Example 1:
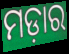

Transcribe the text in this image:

ମଡ଼ାର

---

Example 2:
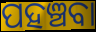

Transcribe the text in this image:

ପହଞ୍ଚବା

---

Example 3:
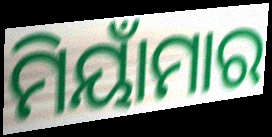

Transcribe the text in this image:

ମିୟାଁମାର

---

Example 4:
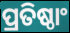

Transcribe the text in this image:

ପ୍ରତିଷ୍ଠାଂ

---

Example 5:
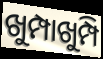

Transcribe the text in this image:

ଖୁମ୍ପାଖୁମ୍ପି